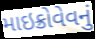
માઇક્રોવેવનું